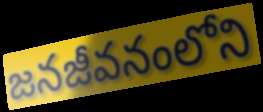
జనజీవనంలోని